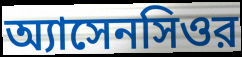
অ্যাসেনসিওর